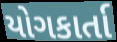
યોગકાર્તા